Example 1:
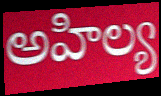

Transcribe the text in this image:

అహిల్య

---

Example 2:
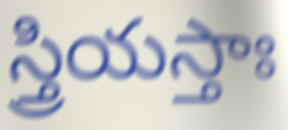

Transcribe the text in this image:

స్త్రియస్తాః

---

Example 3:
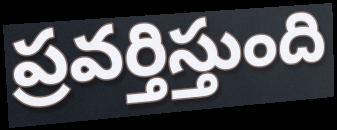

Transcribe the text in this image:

ప్రవర్తిస్తుంది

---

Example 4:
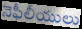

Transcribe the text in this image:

నెఫీలీయులు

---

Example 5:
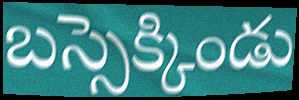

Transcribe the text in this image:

బస్సెక్కిండు